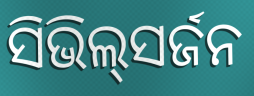
ସିଭିଲ୍‌ସର୍ଜନ